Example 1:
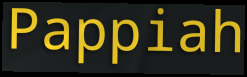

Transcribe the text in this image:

Pappiah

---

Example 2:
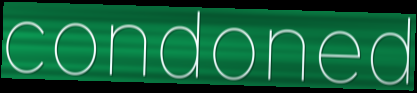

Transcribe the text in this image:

condoned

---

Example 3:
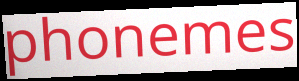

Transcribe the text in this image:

phonemes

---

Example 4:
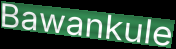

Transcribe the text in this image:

Bawankule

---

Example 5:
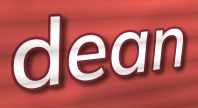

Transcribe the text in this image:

dean